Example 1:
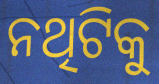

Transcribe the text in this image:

ନଥିଟିକୁ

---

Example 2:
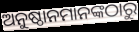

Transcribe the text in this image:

ଅନୁଷ୍ଠାନମାନଙ୍କଠାରୁ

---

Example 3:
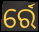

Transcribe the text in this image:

ର୍ରେ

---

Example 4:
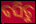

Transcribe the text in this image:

ବସିଚୁ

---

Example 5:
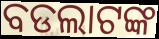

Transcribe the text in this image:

ବଡଲାଟଙ୍କ